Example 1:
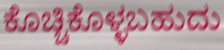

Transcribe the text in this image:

ಕೊಚ್ಚಿಕೊಳ್ಳಬಹುದು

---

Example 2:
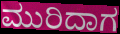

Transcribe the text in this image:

ಮುರಿದಾಗ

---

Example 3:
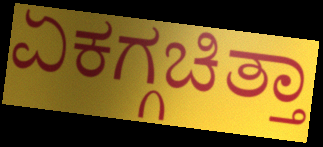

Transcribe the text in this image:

ಏಕಗ್ಗಚಿತ್ತಾ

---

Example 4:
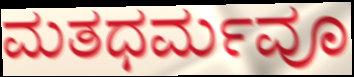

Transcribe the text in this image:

ಮತಧರ್ಮವೂ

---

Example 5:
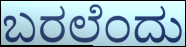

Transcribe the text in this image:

ಬರಲೆಂದು